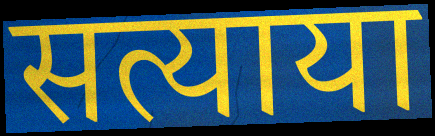
सत्याया